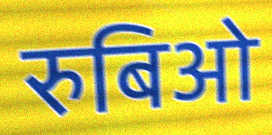
रुबिओ